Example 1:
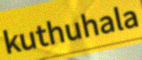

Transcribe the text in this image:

kuthuhala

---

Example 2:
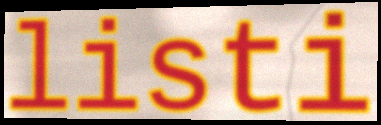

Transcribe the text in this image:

listi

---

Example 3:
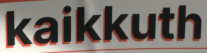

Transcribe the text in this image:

kaikkuth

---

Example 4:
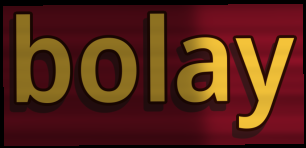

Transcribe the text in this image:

bolay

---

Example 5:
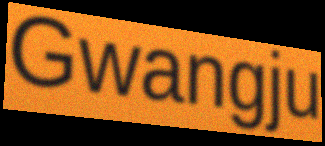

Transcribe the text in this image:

Gwangju